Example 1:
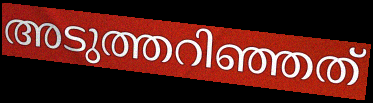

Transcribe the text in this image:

അടുത്തറിഞ്ഞത്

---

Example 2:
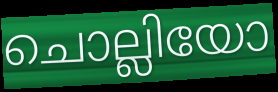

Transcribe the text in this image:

ചൊല്ലിയോ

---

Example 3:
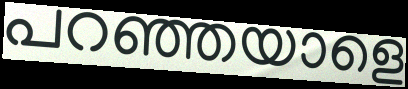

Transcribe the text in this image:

പറഞ്ഞയാളെ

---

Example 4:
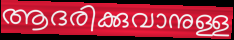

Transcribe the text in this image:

ആദരിക്കുവാനുള്ള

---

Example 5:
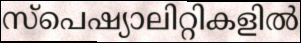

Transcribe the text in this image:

സ്പെഷ്യാലിറ്റികളിൽ